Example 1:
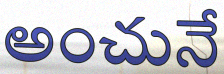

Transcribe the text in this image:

అంచునే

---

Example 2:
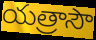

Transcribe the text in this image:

యత్రాసౌ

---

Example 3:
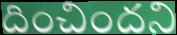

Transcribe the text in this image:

దించిందని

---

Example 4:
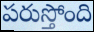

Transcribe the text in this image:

పరుస్తోంది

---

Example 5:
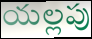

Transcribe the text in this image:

యల్లపు